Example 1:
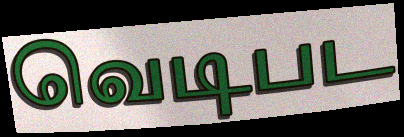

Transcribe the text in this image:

வெடிபட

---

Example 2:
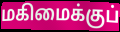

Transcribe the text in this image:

மகிமைக்குப்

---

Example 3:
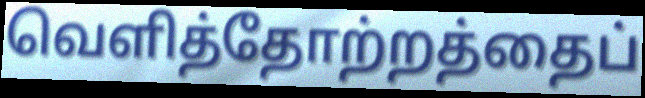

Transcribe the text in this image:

வெளித்தோற்றத்தைப்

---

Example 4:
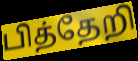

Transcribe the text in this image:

பித்தேறி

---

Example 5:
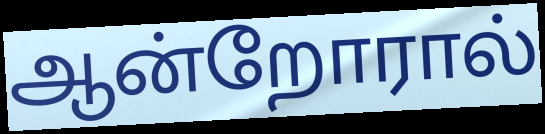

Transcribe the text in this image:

ஆன்றோரால்